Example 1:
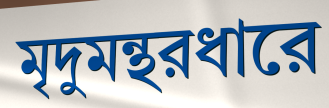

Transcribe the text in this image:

মৃদুমন্থরধারে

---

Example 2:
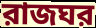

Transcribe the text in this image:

রাজঘর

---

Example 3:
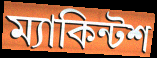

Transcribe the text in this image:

ম্যাকিন্টশ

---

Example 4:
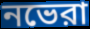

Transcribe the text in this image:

নভেরা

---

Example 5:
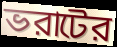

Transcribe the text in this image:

ভরাটের